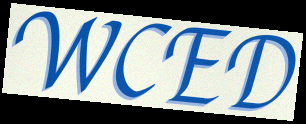
WCED